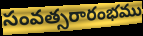
సంవత్సరారంభము